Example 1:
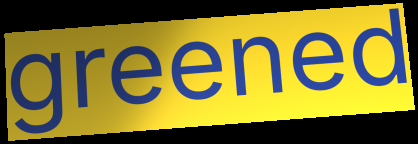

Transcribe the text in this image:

greened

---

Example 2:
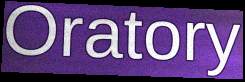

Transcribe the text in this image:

Oratory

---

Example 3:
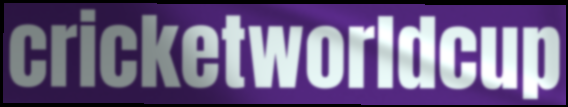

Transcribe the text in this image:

cricketworldcup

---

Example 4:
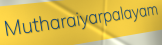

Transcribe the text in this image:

Mutharaiyarpalayam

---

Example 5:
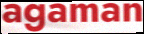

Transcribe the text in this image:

agaman